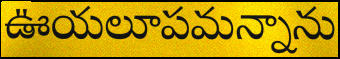
ఊయలూపమన్నాను